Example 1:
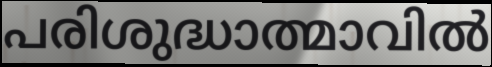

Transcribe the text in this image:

പരിശുദ്ധാത്മാവിൽ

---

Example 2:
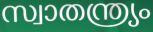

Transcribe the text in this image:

സ്വാതന്ത്ര്യം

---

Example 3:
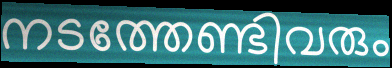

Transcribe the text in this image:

നടത്തേണ്ടിവരും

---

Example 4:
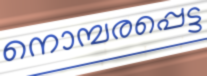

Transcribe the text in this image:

നൊമ്പരപ്പെട്ട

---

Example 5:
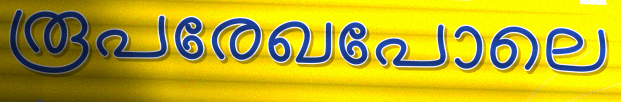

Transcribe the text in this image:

രൂപരേഖപോലെ